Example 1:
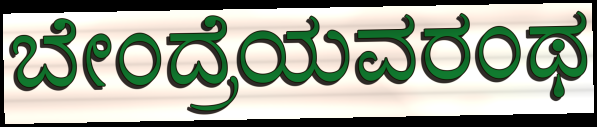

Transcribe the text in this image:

ಬೇಂದ್ರೆಯವರಂಥ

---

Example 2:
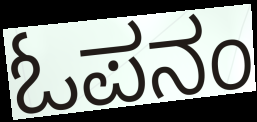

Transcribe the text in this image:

ಓಪನಂ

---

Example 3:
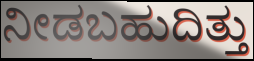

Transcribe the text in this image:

ನೀಡಬಹುದಿತ್ತು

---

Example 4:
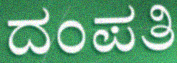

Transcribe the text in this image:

ದಂಪತಿ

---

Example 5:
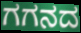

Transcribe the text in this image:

ಗಗನದ